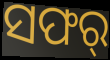
ସଫର୍